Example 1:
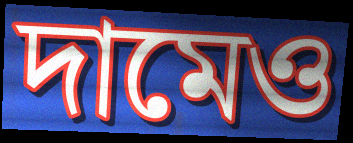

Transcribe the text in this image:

দামেও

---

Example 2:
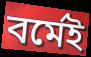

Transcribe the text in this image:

বর্মেই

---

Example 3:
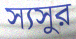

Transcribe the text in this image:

স্যসুর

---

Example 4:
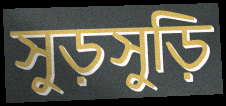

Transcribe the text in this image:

সুড়সুড়ি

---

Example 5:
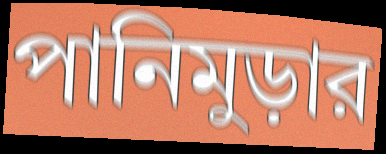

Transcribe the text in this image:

পানিমুড়ার